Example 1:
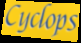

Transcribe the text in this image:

Cyclops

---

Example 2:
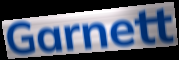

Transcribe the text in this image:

Garnett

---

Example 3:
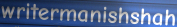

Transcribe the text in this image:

writermanishshah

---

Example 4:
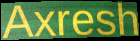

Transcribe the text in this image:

Axresh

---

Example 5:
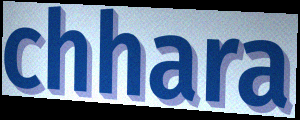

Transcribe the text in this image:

chhara